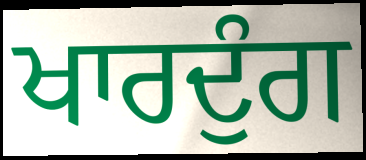
ਖਾਰਦੁੰਗ